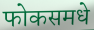
फोकसमधे